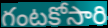
గంటకోసారి